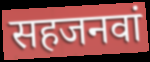
सहजनवां